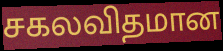
சகலவிதமான